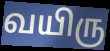
வயிரு